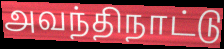
அவந்திநாட்டு